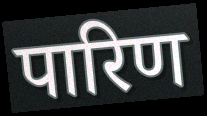
पारिण